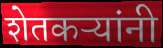
शेतकऱ्यांनी